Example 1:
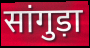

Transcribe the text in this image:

सांगुड़ा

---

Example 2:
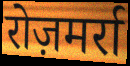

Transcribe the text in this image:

रोज़मर्रा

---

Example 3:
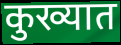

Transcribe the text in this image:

कुख्यात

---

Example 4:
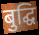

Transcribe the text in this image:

बुद्घि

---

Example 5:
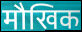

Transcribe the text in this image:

मौखिक